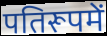
पतिरूपमें